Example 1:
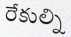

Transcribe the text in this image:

రేకుల్ని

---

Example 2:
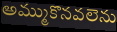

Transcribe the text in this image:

అమ్ముకొనవలెను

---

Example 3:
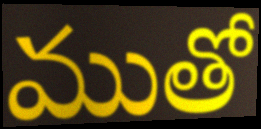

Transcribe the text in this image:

ముతో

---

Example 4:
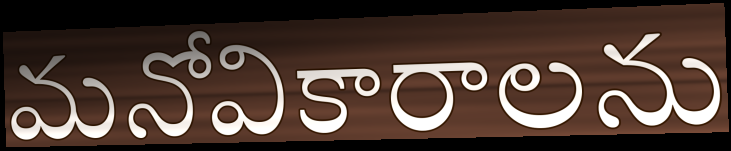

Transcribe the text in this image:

మనోవికారాలను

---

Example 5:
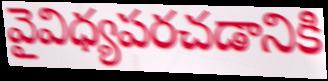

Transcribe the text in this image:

వైవిధ్యపరచడానికి